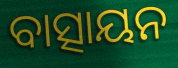
ବାତ୍ସାୟନ